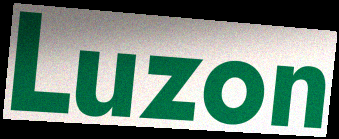
Luzon